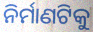
ନିର୍ମାଣଟିକୁ